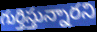
గుర్తిస్తున్నారని